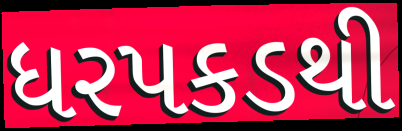
ધરપકડથી